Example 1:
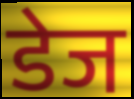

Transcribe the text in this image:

डेज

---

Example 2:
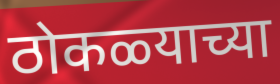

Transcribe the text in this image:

ठोकळ्याच्या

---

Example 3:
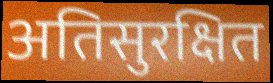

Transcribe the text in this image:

अतिसुरक्षित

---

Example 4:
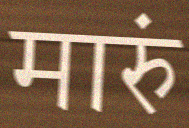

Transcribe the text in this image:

मारुं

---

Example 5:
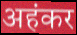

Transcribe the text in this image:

अहंकर